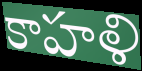
కాహళి